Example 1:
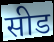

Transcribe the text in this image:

सीड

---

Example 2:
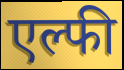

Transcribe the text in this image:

एल्फी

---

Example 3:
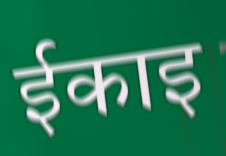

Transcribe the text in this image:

ईकाइ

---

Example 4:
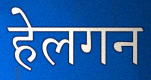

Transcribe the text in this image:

हेलगन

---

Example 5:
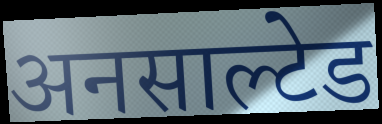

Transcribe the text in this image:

अनसाल्टेड